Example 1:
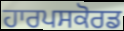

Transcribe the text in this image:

ਹਾਰਪਸਕੋਰਡ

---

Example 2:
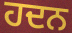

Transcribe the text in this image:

ਹਦਨ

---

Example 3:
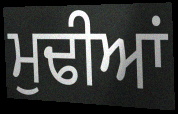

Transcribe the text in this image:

ਮੁਢੀਆਂ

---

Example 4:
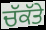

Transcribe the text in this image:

ਚੱਕੱਤੇ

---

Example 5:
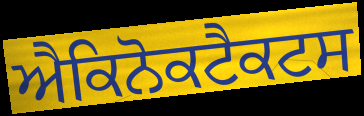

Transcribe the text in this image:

ਐਕਿਨੋਕਟੈਕਟਸ